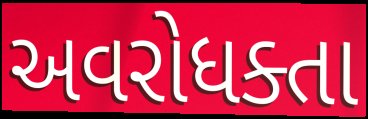
અવરોધક્તા